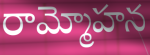
రామ్మోహన